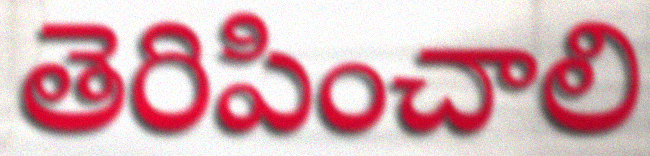
తెరిపించాలి